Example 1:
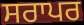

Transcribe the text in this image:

ਸਰਾਪਰ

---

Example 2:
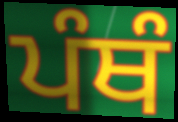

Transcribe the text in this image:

ਪੰਥੰ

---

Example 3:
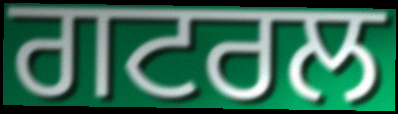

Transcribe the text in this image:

ਗਟਰਲ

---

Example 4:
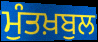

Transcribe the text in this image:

ਮੁੰਤਖ਼ਬੁਲ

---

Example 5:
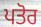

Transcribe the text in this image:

ਪਤੋਰ